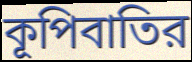
কূপিবাতির